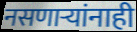
नसणार्‍यांनाही